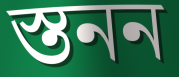
স্তনন